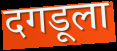
दगडूला